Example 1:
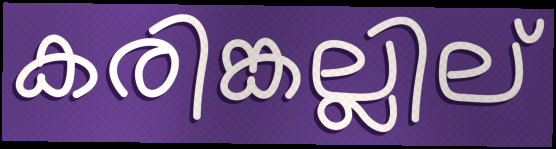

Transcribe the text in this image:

കരിങ്കല്ലില്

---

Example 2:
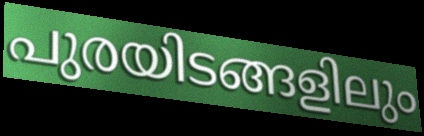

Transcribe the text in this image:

പുരയിടങ്ങളിലും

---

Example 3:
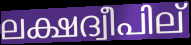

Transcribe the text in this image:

ലക്ഷദ്വീപില്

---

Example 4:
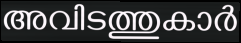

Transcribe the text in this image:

അവിടത്തുകാർ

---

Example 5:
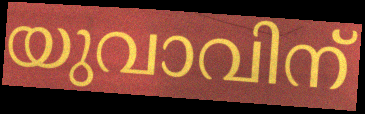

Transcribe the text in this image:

യുവാവിന്